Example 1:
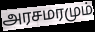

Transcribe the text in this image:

அரசமரமும்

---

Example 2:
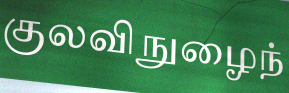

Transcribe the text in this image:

குலவிநுழைந்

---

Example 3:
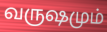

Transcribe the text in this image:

வருஷமும்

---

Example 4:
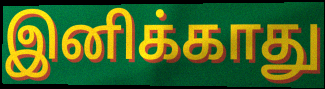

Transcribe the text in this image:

இனிக்காது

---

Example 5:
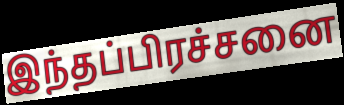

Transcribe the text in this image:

இந்தப்பிரச்சனை